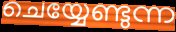
ചെയ്യേണ്ടുന്ന